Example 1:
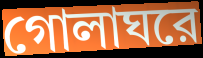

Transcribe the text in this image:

গোলাঘরে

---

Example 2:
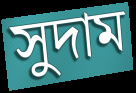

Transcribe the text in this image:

সুদাম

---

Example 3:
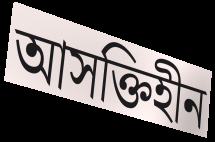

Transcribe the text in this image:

আসক্তিহীন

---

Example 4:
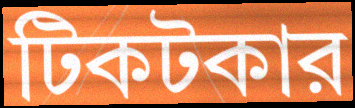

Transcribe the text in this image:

টিকটকার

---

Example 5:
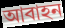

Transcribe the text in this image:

আবাহন